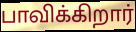
பாவிக்கிறார்